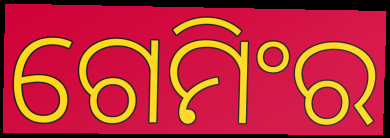
ଗେମିଂର